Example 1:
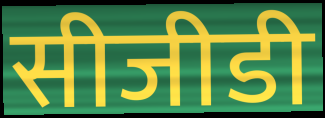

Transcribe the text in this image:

सीजीडी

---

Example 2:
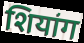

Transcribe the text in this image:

शियांग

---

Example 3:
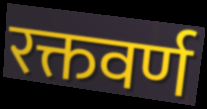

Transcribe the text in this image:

रक्तवर्ण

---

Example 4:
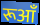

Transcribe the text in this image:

रूआँ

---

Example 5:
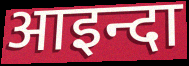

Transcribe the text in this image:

आइन्दा